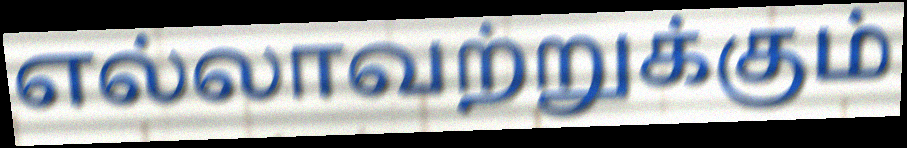
எல்லாவற்றுக்கும்